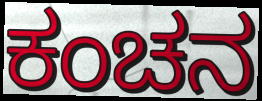
ಕಂಚನ